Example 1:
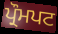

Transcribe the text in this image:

ਪ੍ਰੌਮਪਟ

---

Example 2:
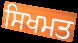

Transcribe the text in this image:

ਸਿਖਮਤ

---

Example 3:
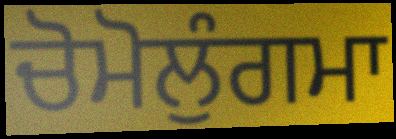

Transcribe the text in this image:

ਚੋਮੋਲੁੰਗਮਾ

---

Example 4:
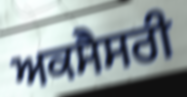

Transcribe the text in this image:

ਅਕਸੈਸਰੀ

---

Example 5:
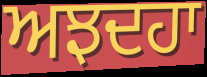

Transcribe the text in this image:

ਅਝਦਹਾ